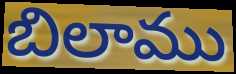
బిలాము